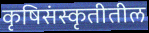
कृषिसंस्कृतीतील